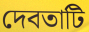
দেবতাটি